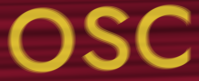
osc